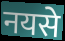
नयसे